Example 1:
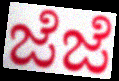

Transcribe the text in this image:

ಜೆಜೆ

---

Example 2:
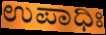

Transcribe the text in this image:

ಉಪಾಧಿಃ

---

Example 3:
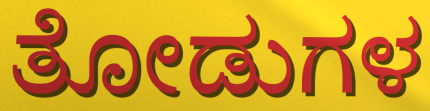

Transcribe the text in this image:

ತೋಡುಗಳ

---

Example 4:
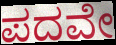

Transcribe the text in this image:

ಪದವೇ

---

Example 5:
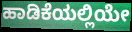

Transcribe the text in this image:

ಹಾಡಿಕೆಯಲ್ಲಿಯೇ